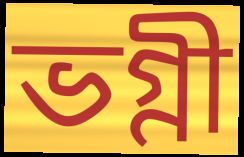
ভগ্নী